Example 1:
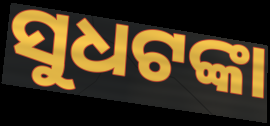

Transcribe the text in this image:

ସୁଧଟଙ୍କା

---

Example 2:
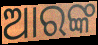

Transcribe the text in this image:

ଆରଙ୍କ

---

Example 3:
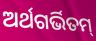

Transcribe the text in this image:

ଅର୍ଥଗର୍ଭିତମ୍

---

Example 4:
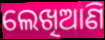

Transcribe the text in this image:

ଲେଖିଆଣି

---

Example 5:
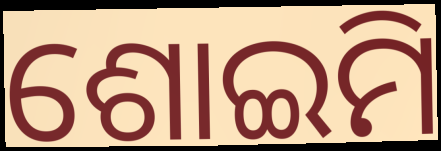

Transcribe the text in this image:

ଶୋଇମି